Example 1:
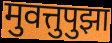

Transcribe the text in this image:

मुवत्तुपुझा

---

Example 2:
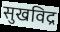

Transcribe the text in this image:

सुखविद्र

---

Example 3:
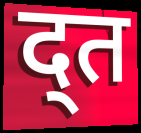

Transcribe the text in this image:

द्त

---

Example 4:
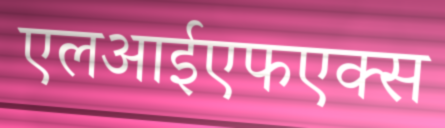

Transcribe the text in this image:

एलआईएफएक्स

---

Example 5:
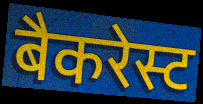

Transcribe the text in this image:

बैकरेस्ट